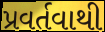
પ્રવર્તવાથી